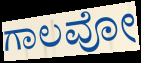
ಗಾಲವೋ